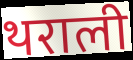
थराली